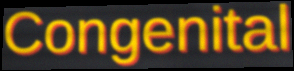
Congenital